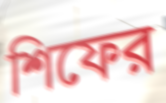
শিফের